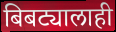
बिबट्यालाही